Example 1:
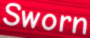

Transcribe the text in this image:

Sworn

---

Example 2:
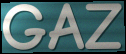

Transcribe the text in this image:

GAZ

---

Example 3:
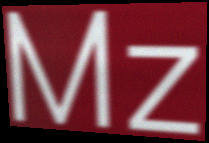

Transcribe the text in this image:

Mz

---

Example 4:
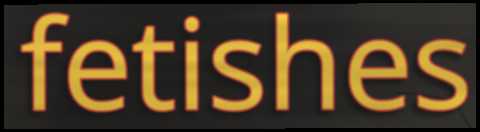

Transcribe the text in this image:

fetishes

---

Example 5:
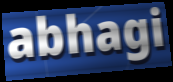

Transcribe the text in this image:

abhagi